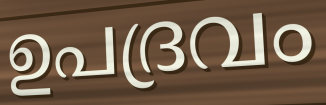
ഉപദ്രവം